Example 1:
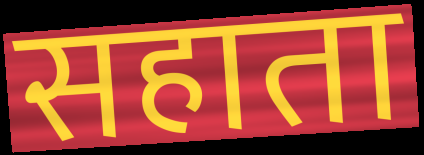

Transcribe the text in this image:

सहाता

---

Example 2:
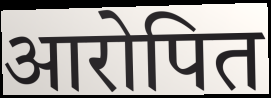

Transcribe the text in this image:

आरोपित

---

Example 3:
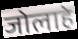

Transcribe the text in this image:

जोलाहे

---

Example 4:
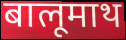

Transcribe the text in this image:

बालूमाथ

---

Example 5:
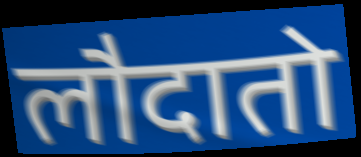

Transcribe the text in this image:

लौदातो